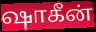
ஷாகீன்